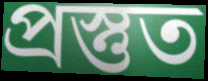
প্ৰস্তুত